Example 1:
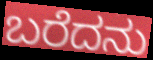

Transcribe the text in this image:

ಬರೆದನು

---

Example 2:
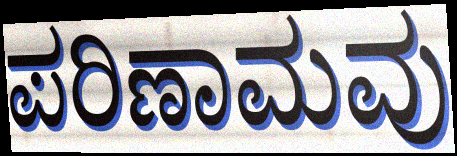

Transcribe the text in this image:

ಪರಿಣಾಮವು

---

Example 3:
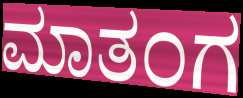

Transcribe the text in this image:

ಮಾತಂಗ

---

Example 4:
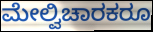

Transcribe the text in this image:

ಮೇಲ್ವಿಚಾರಕರೂ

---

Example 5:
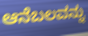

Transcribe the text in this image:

ಆನೆಬಲವನ್ನು